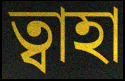
ত্বাহা